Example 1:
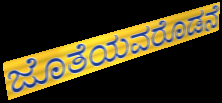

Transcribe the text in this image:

ಜೊತೆಯವರೊಡನೆ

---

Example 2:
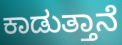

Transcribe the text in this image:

ಕಾಡುತ್ತಾನೆ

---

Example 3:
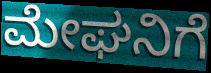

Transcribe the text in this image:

ಮೇಘನಿಗೆ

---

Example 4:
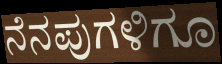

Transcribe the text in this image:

ನೆನಪುಗಳಿಗೂ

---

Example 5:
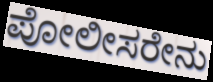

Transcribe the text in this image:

ಪೋಲೀಸರೇನು